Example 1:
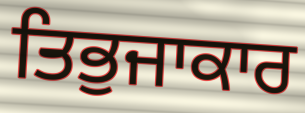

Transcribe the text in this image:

ਤਿਭੁਜਾਕਾਰ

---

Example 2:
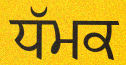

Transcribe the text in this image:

ਧੱਮਕ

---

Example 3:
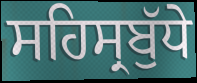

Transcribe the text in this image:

ਸਹਿਸ੍ਰਬੁੱਧੇ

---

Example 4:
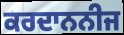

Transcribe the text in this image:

ਕਰਦਾਨਨੀਜ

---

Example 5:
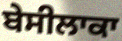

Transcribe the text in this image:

ਬੇਸੀਲਾਕਾ